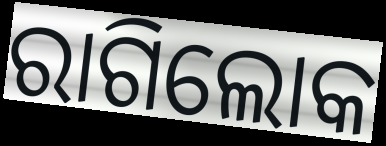
ରାଗିଲୋକ